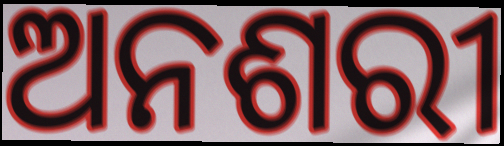
ଅନଶରୀ